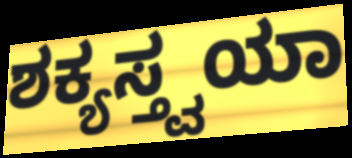
ಶಕ್ಯಸ್ತ್ವಯಾ